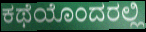
ಕಥೆಯೊಂದರಲ್ಲಿ